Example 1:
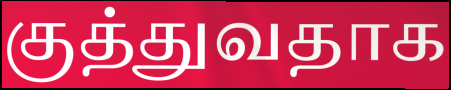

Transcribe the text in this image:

குத்துவதாக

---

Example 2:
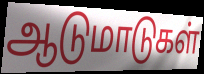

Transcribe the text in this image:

ஆடுமாடுகள்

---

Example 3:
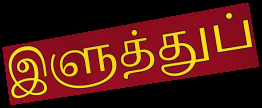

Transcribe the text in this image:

இளுத்துப்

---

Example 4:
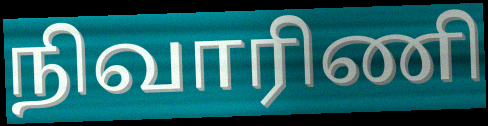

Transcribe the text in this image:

நிவாரிணி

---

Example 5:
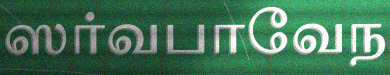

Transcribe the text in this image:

ஸர்வபாவேந